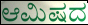
ಆಮಿಷದ